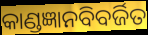
କାଣ୍ଡଜ୍ଞାନବିବର୍ଜିତ